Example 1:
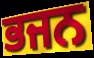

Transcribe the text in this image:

ਭਜਨ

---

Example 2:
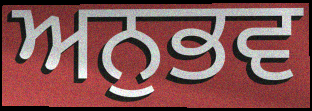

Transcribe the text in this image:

ਅਨੁਭਵ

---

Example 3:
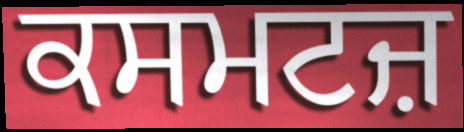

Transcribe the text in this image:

ਕਸਮਟਜ਼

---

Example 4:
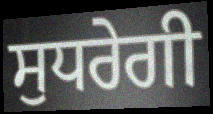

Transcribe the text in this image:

ਸੁਧਰੇਗੀ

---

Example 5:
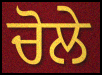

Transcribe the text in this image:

ਚੋਲੇ